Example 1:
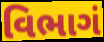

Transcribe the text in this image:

વિભાગં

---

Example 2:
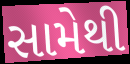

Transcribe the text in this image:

સામેથી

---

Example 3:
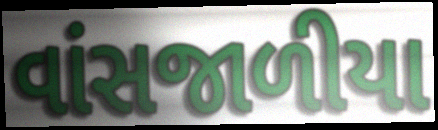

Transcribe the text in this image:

વાંસજાળીયા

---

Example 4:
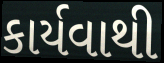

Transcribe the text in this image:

કાર્યવાથી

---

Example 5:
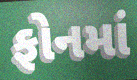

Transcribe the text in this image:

ફોનમાં